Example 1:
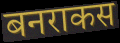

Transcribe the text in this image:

बनराकस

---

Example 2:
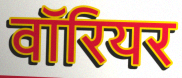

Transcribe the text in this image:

वॉरियर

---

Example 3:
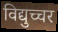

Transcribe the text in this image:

विद्युच्चर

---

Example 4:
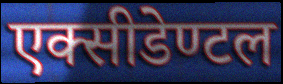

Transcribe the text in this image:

एक्सीडेण्टल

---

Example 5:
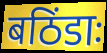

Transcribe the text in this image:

बठिंडाः